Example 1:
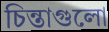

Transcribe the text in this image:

চিন্তাগুলো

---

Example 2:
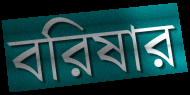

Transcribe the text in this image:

বরিষার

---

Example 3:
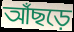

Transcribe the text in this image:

আঁছড়ে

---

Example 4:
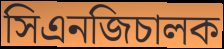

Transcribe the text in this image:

সিএনজিচালক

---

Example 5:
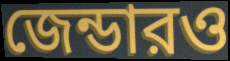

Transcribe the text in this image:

জেন্ডারও